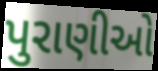
પુરાણીઓ